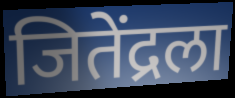
जितेंद्रला